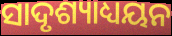
ସାଦୃଶ୍ୟାଧ୍ୟୟନ